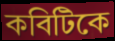
কবিটিকে